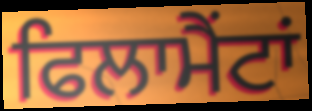
ਫਿਲਾਮੈਂਟਾਂ